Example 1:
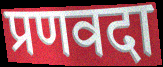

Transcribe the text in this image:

प्रणवदा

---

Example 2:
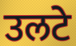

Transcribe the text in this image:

उलटे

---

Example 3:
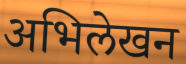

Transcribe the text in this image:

अभिलेखन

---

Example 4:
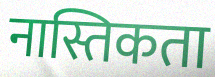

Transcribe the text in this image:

नास्तिकता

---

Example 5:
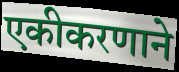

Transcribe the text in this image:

एकीकरणाने